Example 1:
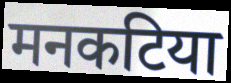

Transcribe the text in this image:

मनकटिया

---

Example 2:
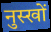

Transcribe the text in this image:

नुस्‍खों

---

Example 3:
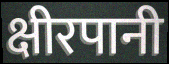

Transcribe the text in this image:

क्षीरपानी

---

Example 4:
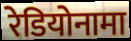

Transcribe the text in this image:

रेडियोनामा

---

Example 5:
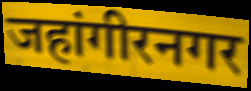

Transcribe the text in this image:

जहांगीरनगर